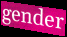
gender